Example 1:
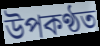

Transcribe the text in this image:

উপকণ্ঠত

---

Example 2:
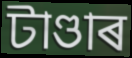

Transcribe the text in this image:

টাণ্ডাৰ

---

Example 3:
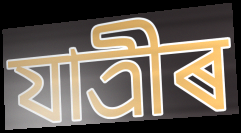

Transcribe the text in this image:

যাত্ৰীৰ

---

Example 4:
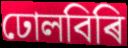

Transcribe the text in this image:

ঢোলবিৰি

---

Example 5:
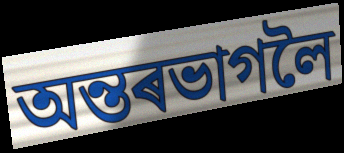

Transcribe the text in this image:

অন্তৰভাগলৈ